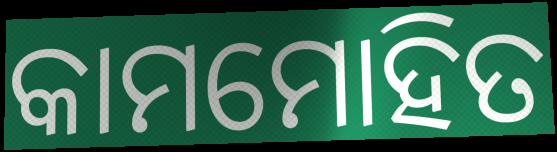
କାମମୋହିତ